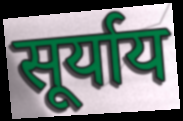
सूर्याय